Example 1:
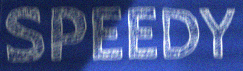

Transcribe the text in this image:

SPEEDY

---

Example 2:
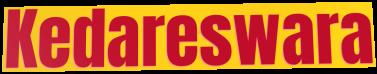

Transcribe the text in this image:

Kedareswara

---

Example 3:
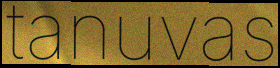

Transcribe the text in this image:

tanuvas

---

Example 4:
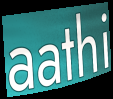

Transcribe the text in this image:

aathi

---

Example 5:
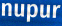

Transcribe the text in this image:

nupur